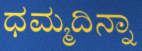
ಧಮ್ಮದಿನ್ನಾ